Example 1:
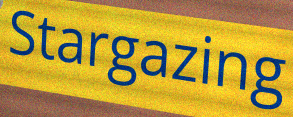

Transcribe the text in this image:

Stargazing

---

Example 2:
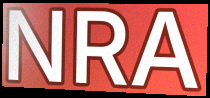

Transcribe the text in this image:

NRA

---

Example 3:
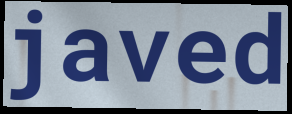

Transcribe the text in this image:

javed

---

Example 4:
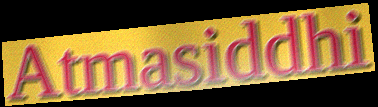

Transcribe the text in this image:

Atmasiddhi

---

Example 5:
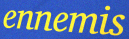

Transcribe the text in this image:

ennemis